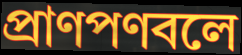
প্রাণপণবলে